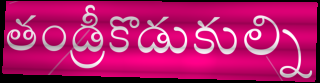
తండ్రీకొడుకుల్ని